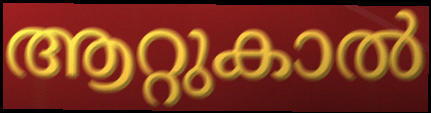
ആറ്റുകാൽ